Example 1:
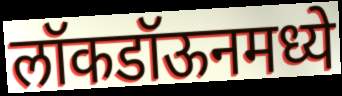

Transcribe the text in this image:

लॉकडॉऊनमध्ये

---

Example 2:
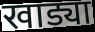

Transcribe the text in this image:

खाड्या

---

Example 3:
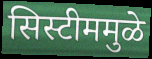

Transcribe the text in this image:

सिस्टीममुळे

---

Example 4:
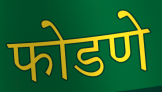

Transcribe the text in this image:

फोडणे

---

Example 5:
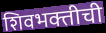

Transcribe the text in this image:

शिवभक्तीची